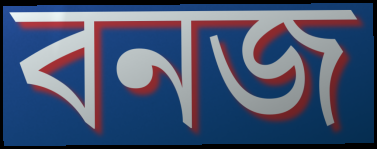
বনজ